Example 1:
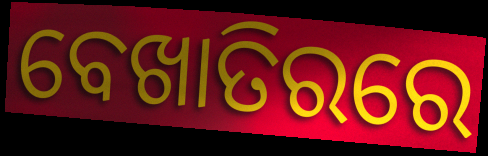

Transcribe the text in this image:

ବେଖାତିରରେ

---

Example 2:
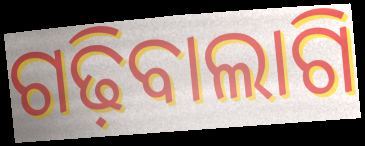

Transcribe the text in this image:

ଗଢ଼ିବାଲାଗି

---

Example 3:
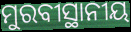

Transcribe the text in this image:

ମୁରବୀସ୍ଥାନୀୟ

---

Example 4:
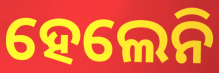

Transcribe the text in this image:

ହେଲେନି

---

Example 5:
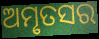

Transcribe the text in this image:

ଅମୃତସର